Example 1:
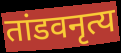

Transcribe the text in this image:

तांडवनृत्य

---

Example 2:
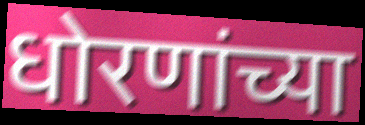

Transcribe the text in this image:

धोरणांच्या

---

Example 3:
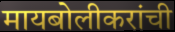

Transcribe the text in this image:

मायबोलीकरांची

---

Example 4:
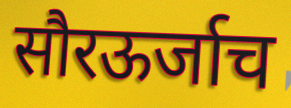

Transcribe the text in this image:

सौरऊर्जाच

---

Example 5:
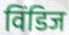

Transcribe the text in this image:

विंडिज